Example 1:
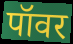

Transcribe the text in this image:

पॉवर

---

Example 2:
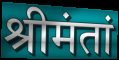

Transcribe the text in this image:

श्रीमंतां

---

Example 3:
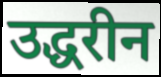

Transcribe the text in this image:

उद्धरीन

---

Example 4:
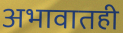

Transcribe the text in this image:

अभावातही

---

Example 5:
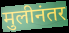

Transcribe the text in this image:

मुलीनंतर